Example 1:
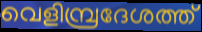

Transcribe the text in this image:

വെളിമ്പ്രദേശത്ത്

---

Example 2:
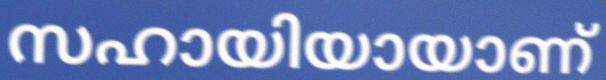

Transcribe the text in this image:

സഹായിയായാണ്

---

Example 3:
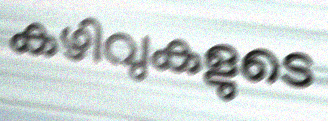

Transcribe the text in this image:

കഴിവുകളുടെ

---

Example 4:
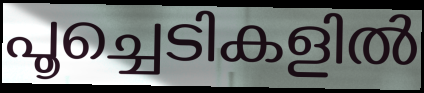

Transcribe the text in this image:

പൂച്ചെടികളിൽ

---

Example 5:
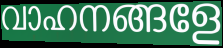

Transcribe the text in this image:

വാഹനങ്ങളേ